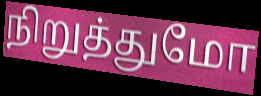
நிறுத்துமோ